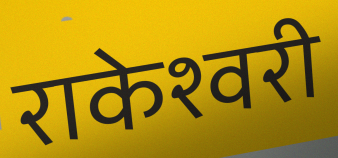
राकेश्वरी